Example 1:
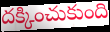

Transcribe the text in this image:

దక్కించుకుంది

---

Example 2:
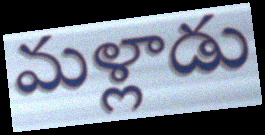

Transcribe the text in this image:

మళ్లాడు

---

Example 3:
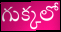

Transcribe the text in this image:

గుక్కలో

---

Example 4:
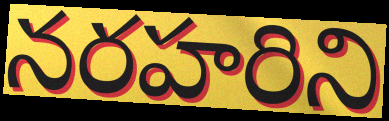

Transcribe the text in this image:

నరహరిని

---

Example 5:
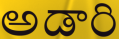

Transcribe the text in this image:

అడారి